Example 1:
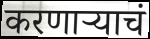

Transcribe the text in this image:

करणाऱ्याचं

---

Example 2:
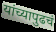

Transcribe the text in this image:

यांच्यापुढचं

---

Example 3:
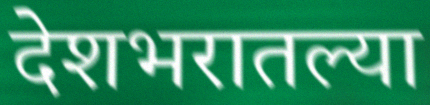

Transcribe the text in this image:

देशभरातल्या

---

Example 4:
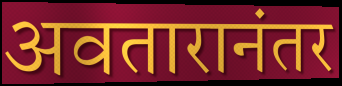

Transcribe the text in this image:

अवतारानंतर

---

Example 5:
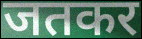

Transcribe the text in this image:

जतकर